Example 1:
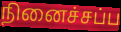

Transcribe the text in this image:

நினைச்சப்ப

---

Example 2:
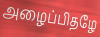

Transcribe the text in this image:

அழைப்பிதழே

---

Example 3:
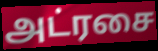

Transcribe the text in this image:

அட்ரசை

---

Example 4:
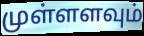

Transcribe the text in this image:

முள்ளளவும்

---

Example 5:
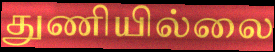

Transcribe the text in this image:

துணியில்லை